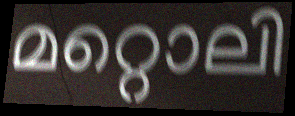
മറ്റൊലി